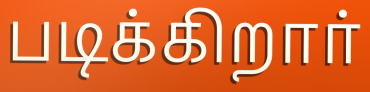
படிக்கிறார்